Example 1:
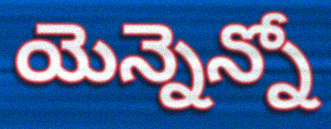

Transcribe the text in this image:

యెన్నెన్నో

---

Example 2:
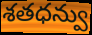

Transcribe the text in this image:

శతధన్వు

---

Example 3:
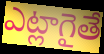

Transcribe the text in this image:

ఎట్లాగైతే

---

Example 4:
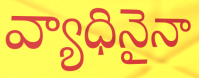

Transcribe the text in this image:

వ్యాధినైనా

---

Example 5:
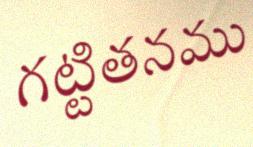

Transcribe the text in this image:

గట్టితనము